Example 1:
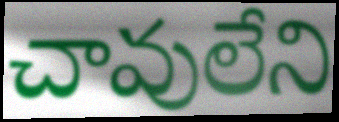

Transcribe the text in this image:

చావులేని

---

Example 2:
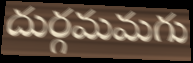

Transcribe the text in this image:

దుర్గమమగు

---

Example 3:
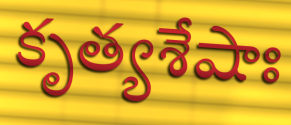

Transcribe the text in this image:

కృత్యశేషాః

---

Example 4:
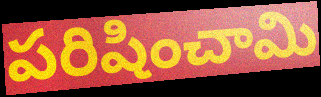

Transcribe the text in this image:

పరిషించామి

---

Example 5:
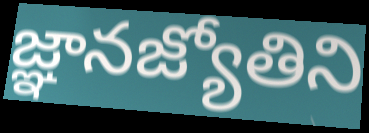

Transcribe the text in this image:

జ్ఞానజ్యోతిని